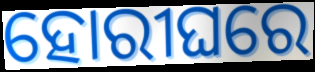
ହୋରୀଘରେ